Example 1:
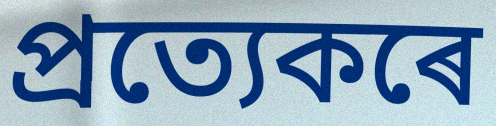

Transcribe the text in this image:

প্ৰত্যেকৰে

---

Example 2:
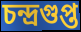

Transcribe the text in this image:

চন্দ্ৰগুপ্ত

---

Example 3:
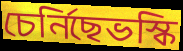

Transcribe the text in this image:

চেৰ্নিছেভস্কি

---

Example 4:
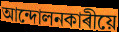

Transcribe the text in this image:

আন্দোলনকাৰীয়ে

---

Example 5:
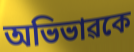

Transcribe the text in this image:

অভিভাৱকে